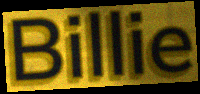
Billie